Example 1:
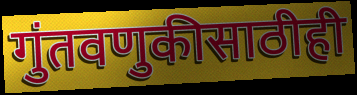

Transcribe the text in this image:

गुंतवणुकीसाठीही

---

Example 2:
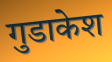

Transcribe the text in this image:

गुडाकेश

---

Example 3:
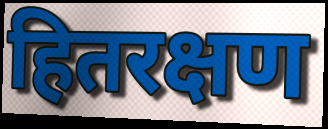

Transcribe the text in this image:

हितरक्षण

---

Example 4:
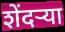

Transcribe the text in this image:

शेंदर्‍या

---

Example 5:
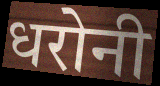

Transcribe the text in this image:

धरोनी